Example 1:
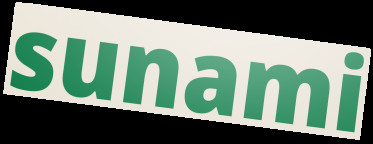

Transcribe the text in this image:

sunami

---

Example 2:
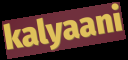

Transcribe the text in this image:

kalyaani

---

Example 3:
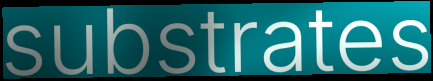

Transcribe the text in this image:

substrates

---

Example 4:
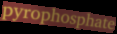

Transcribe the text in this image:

pyrophosphate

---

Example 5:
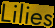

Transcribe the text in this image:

Lilies